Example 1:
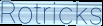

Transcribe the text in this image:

Rotricks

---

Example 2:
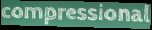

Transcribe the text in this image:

compressional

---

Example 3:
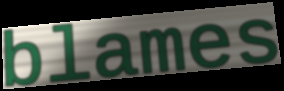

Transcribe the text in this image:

blames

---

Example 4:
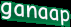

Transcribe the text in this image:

ganaap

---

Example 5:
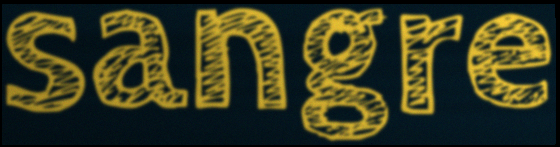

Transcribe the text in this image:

sangre